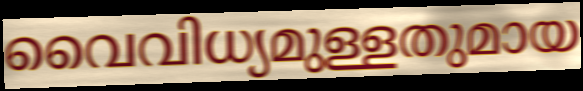
വൈവിധ്യമുള്ളതുമായ